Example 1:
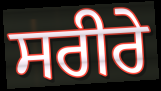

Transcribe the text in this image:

ਸਰੀਰੇ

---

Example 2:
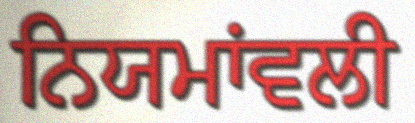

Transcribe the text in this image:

ਨਿਯਮਾਂਵਲੀ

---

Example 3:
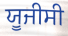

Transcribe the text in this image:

ਯੂਜੀਸੀ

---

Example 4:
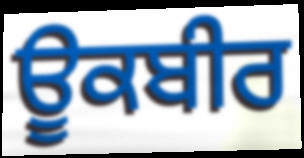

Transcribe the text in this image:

ਊਕਬੀਰ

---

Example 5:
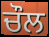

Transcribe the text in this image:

ਚੌਲ